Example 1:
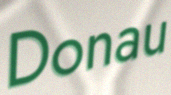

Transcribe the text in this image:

Donau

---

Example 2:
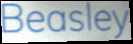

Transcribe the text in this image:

Beasley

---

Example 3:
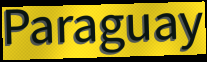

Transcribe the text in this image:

Paraguay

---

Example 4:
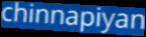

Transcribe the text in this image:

chinnapiyan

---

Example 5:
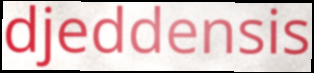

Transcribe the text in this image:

djeddensis